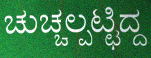
ಚುಚ್ಚಲ್ಪಟ್ಟಿದ್ದ